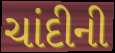
ચાંદીની